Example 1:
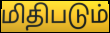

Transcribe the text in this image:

மிதிபடும்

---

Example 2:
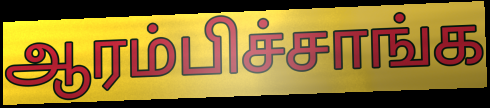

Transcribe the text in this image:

ஆரம்பிச்சாங்க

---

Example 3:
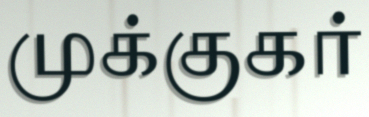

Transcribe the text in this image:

முக்குகர்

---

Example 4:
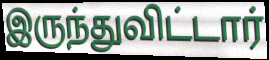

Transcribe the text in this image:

இருந்துவிட்டார்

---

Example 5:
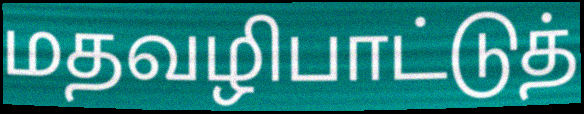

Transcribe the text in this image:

மதவழிபாட்டுத்